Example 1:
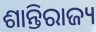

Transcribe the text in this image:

ଶାନ୍ତିରାଜ୍ୟ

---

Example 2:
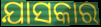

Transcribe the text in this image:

ଯାସକାର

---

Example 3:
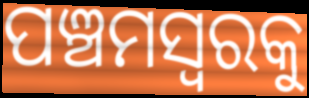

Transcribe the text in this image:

ପଞ୍ଚମସ୍ୱରକୁ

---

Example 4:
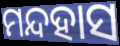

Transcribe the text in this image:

ମନ୍ଦହାସ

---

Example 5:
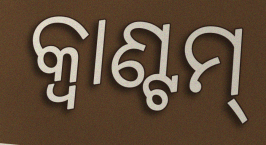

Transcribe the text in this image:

କ୍ୱାଣ୍ଟମ୍